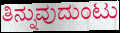
ತಿನ್ನುವುದುಂಟು